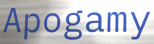
Apogamy